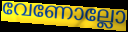
വേണോല്ലോ